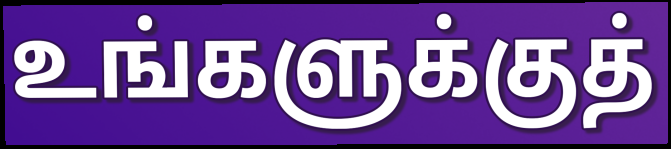
உங்களுக்குத்